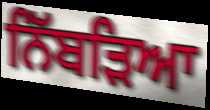
ਨਿੱਬੜਿਆ